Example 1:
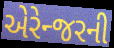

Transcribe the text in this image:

એરેન્જરની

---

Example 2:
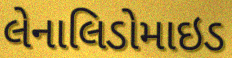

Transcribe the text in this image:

લેનાલિડોમાઇડ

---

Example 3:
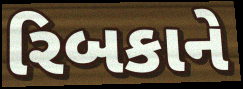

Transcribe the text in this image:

રિબકાને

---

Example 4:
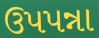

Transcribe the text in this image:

ઉપપન્ના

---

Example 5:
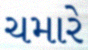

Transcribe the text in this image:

ચમારે